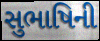
સુભાષિની